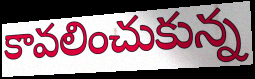
కావలించుకున్న